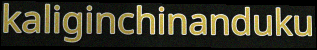
kaliginchinanduku